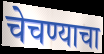
चेचण्याचा